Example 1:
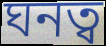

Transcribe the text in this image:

ঘনত্ব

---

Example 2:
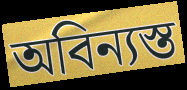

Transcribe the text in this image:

অবিন্যস্ত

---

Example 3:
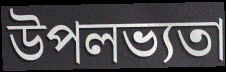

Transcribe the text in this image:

উপলভ্যতা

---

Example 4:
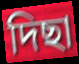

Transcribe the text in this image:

দিছা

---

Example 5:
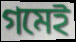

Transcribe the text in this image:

গমেই